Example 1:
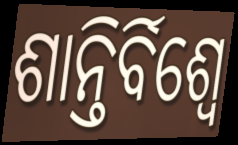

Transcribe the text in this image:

ଶାନ୍ତିର୍ବିଶ୍ୱେ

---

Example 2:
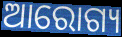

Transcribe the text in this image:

ଆରୋଗ୍ଯ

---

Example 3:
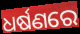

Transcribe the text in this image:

ଧର୍ଷଣରେ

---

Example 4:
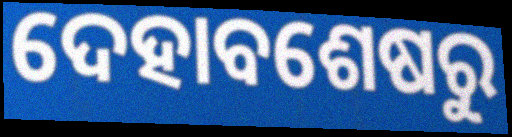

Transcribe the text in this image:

ଦେହାବଶେଷରୁ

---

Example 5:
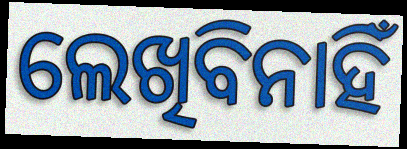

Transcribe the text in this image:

ଲେଖିବିନାହିଁ